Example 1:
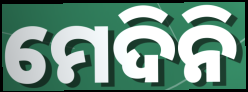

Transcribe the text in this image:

ମେଦିନି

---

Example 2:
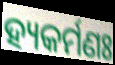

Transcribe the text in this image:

ହ୍ୟକର୍ମଣଃ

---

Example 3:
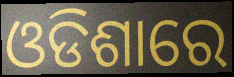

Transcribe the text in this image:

ଓଡିଶାରେ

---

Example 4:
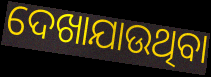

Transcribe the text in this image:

ଦେଖାଯାଉଥିବା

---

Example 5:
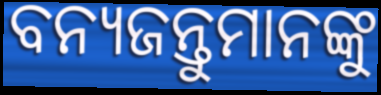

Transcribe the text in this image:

ବନ୍ୟଜନ୍ତୁମାନଙ୍କୁ